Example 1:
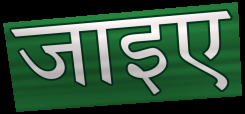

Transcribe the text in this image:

जाइए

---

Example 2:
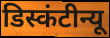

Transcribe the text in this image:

डिस्कंटीन्यू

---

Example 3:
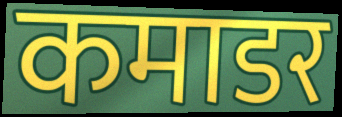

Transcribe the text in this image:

कमाडर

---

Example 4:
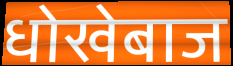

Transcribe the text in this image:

धोखेबाज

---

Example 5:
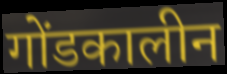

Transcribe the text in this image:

गोंडकालीन